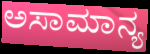
ಅಸಾಮಾನ್ಯ